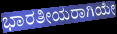
ಭಾರತೀಯರಾಗಿಯೇ